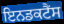
ਇਨਡਕਟੈਂਸ